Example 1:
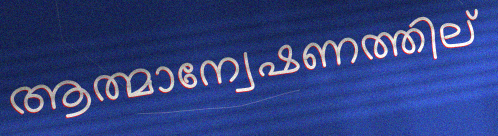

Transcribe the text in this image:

ആത്മാന്വേഷണത്തില്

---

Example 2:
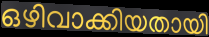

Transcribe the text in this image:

ഒഴിവാക്കിയതായി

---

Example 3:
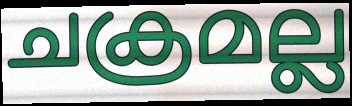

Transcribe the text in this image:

ചക്രമല്ല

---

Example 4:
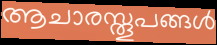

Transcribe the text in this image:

ആചാരസ്തൂപങ്ങൾ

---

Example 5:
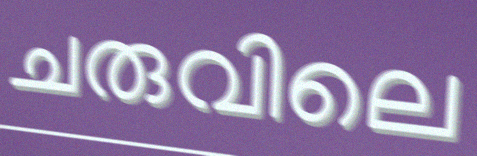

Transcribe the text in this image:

ചരുവിലെ